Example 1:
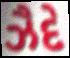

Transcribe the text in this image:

ઝૈદે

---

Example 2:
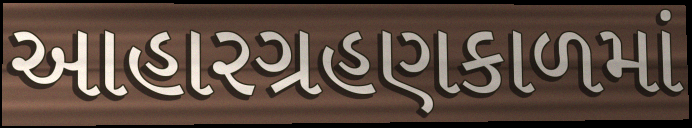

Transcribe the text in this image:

આહારગ્રહણકાળમાં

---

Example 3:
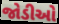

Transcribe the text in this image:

જોડીઓ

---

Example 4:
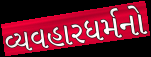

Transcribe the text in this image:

વ્યવહારધર્મનો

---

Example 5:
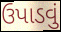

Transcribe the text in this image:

ઉપાડવું